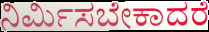
ನಿರ್ಮಿಸಬೇಕಾದರೆ